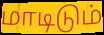
மாடிடும்